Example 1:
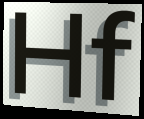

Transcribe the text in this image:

Hf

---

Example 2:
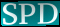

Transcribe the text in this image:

SPD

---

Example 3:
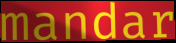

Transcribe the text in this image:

mandar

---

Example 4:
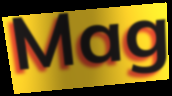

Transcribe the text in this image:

Mag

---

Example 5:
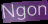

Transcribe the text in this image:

Ngon